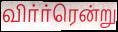
விர்ர்ரென்று